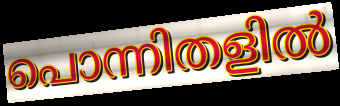
പൊന്നിതളിൽ